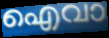
ഐവാ